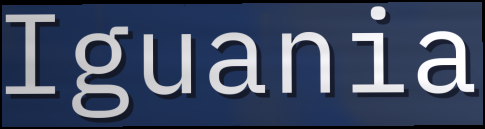
Iguania